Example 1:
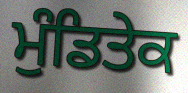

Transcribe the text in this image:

ਮੁੰਡਿਤੇਕ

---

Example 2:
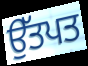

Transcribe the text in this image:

ਉੱਤਪਤ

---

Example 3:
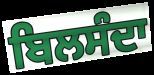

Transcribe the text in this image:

ਬਿਲਸੰਦਾ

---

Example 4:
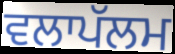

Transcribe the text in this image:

ਵਲਾਪੱਲਮ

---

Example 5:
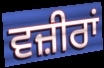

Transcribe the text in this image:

ਵਜ਼ੀਰਾਂ